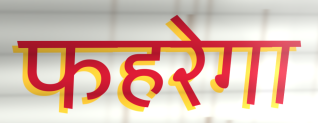
फहरेगा